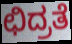
ಛಿದ್ರತೆ